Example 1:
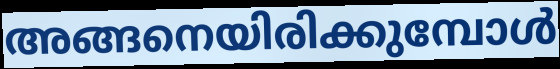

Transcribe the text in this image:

അങ്ങനെയിരിക്കുമ്പോൾ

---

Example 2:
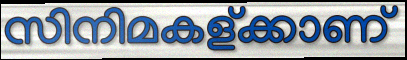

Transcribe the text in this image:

സിനിമകള്ക്കാണ്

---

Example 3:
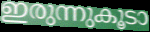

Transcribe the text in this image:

ഇരുന്നുകൂടാ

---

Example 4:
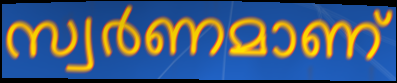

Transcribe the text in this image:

സ്വർണമാണ്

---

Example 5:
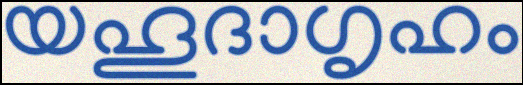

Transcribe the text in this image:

യഹൂദാഗൃഹം